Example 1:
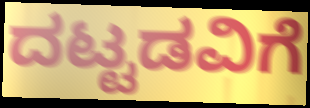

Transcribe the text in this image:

ದಟ್ಟಡವಿಗೆ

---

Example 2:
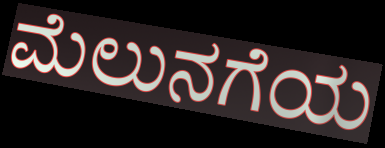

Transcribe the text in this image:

ಮೆಲುನಗೆಯ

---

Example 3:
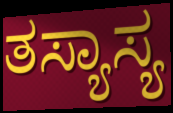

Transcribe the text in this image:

ತಸ್ಯಾಸ್ಯ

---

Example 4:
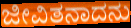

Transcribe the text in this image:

ಜೀವಿತನಾದನು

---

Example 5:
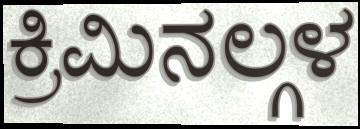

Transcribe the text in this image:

ಕ್ರಿಮಿನಲ್ಗಳ